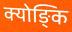
क्योङ्कि